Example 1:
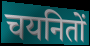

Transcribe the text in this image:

चयनितों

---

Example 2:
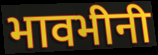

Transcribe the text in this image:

भावभीनी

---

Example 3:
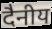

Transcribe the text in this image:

दैनीय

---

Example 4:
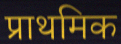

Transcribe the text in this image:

प्राथमिक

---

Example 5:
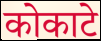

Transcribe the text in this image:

कोकाटे